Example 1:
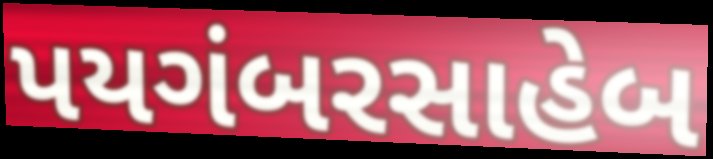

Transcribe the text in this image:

પયગંબરસાહેબ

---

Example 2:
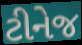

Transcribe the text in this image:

ટીનેજ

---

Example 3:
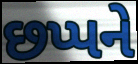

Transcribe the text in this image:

છપ્પને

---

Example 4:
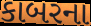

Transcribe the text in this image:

કાબરના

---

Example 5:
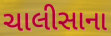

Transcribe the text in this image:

ચાલીસાના